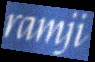
ramji